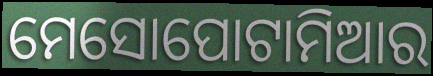
ମେସୋପୋଟାମିଆର